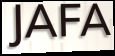
JAFA